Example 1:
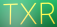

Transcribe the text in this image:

TXR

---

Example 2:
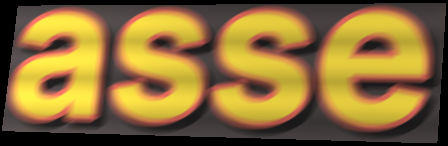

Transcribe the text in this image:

asse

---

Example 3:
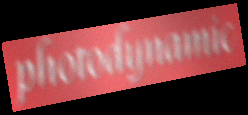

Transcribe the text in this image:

photodynamic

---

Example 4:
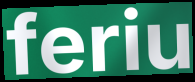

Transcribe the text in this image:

feriu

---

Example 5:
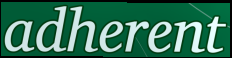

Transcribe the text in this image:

adherent